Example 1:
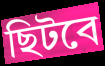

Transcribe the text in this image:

ছিটবে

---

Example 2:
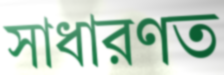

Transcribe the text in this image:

সাধারণত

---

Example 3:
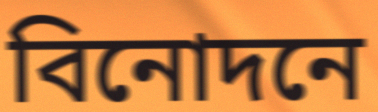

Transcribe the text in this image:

বিনোদনে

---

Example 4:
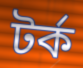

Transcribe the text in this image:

টর্ক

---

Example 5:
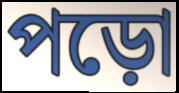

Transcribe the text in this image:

পড়ো